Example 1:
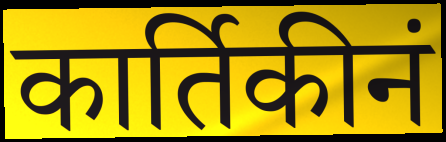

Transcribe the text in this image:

कार्तिकीनं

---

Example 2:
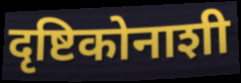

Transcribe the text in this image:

दृष्टिकोनाशी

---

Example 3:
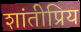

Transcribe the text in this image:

शांतीप्रिय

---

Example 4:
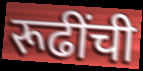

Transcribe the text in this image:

रूढींची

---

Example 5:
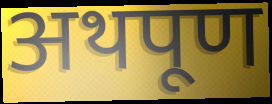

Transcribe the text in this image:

अथपूण